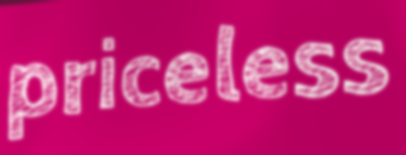
priceless